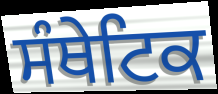
ਸੰਥੇਟਿਕ